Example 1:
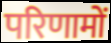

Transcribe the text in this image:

परिणामों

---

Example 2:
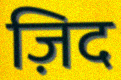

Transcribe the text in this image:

ज़िद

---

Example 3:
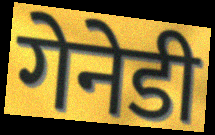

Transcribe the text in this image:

गेनेडी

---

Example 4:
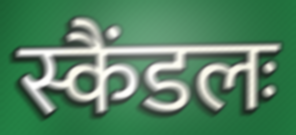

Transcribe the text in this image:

स्कैंडलः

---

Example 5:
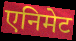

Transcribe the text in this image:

एनिमेट